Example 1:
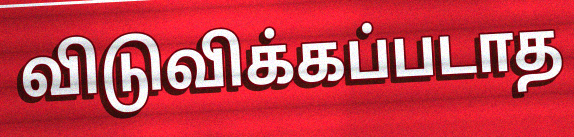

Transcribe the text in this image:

விடுவிக்கப்படாத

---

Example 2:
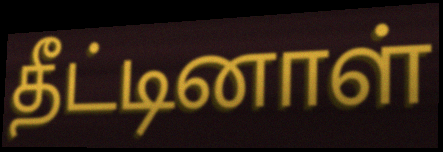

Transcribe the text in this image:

தீட்டினாள்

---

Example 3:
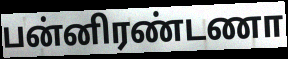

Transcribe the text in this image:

பன்னிரண்டணா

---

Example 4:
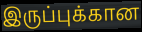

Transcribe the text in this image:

இருப்புக்கான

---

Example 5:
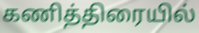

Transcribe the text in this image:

கணித்திரையில்